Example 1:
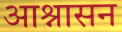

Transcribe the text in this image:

आश्नासन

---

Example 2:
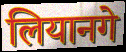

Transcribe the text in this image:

लियानगे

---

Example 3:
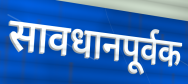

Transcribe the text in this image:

सावधानपूर्वक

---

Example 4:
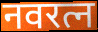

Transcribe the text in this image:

नवरत्न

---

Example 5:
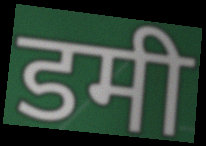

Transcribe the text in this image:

डमी